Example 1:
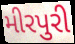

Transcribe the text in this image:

મીરપુરી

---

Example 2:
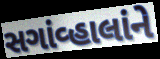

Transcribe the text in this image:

સગાંવ્હાલાંને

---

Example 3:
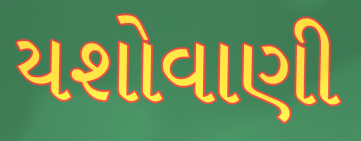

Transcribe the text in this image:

યશોવાણી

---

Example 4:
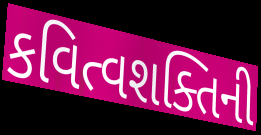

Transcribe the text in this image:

કવિત્વશક્તિની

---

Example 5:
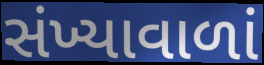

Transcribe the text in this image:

સંખ્યાવાળાં